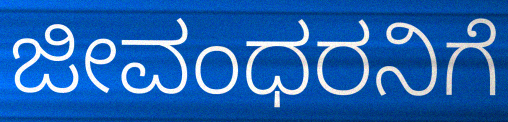
ಜೀವಂಧರನಿಗೆ